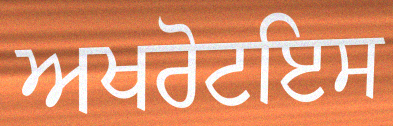
ਅਖਰੋਟਇਸ